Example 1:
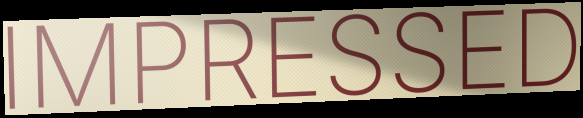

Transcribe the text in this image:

IMPRESSED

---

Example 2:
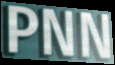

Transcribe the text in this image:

PNN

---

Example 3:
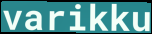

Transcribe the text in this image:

varikku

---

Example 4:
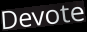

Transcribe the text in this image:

Devote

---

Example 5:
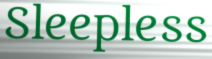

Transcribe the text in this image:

Sleepless